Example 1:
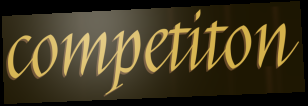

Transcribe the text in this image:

competiton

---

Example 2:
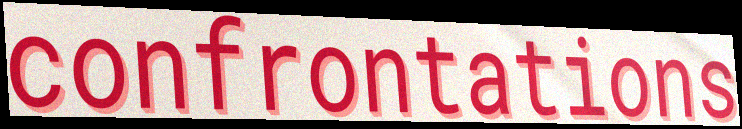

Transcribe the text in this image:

confrontations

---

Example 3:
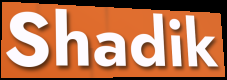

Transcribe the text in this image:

Shadik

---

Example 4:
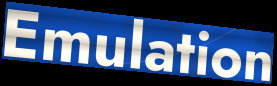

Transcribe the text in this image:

Emulation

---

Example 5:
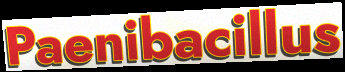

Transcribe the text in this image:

Paenibacillus